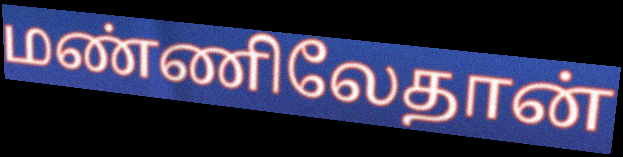
மண்ணிலேதான்